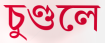
চুণ্ডলে